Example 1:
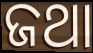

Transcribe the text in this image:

ଜଥା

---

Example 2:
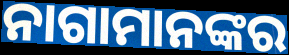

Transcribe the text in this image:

ନାଗାମାନଙ୍କର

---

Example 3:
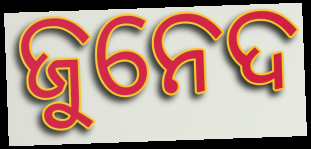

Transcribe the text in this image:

ଜୁନେଦ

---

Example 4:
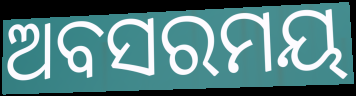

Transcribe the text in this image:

ଅବସରମୟ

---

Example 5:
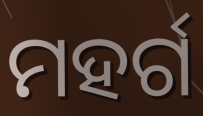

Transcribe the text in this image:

ମହର୍ଗ